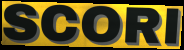
SCORI